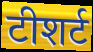
टीशर्ट